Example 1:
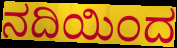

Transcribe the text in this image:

ನದಿಯಿಂದ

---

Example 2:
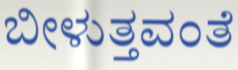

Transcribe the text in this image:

ಬೀಳುತ್ತವಂತೆ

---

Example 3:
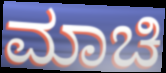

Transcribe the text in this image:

ಮಾಚಿ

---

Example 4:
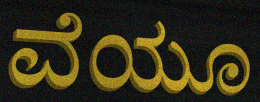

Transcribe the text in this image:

ವೆಯೂ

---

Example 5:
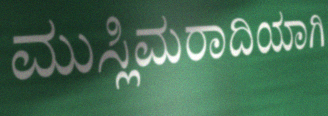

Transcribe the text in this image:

ಮುಸ್ಲಿಮರಾದಿಯಾಗಿ